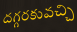
దగ్గరకువచ్చి